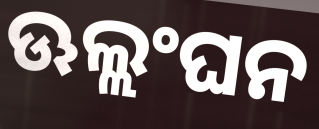
ଊଲ୍ଲଂଘନ